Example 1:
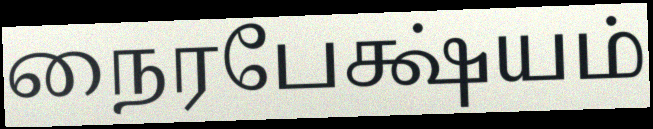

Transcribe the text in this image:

நைரபேக்ஷ்யம்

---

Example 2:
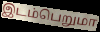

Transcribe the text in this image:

இடம்பெறுமா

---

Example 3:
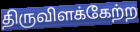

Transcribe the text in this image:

திருவிளக்கேற்ற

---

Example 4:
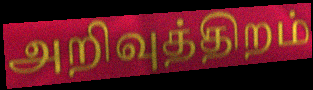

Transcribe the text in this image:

அறிவுத்திறம்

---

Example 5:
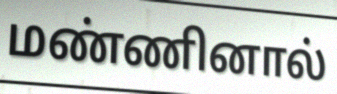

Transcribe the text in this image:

மண்ணினால்